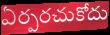
ఏర్పరచుకోదు